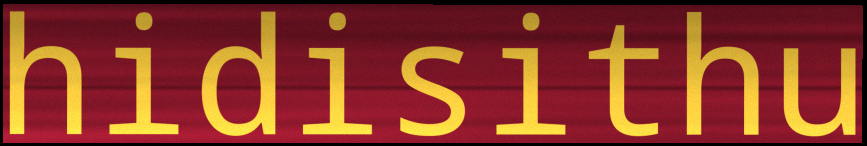
hidisithu